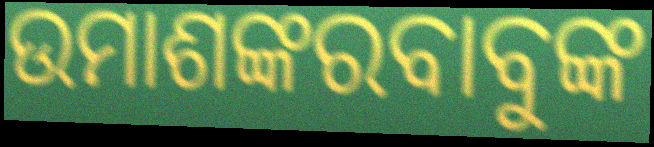
ଉମାଶଙ୍କରବାବୁଙ୍କ